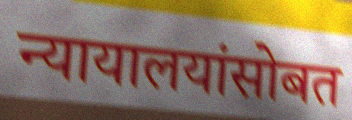
न्यायालयांसोबत